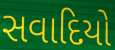
સવાદિયો